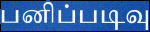
பனிப்படிவு